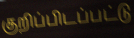
குறிப்பிடப்பட்டு